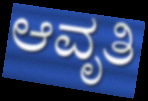
ಆವೃತಿ